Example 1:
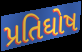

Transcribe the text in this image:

પ્રતિઘોષ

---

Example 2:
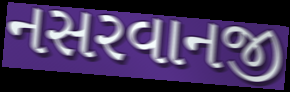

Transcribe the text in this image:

નસરવાનજી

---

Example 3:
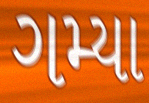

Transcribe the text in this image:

ગમ્યા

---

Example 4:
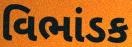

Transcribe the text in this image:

વિભાંડક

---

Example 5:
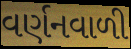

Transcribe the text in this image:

વર્ણનવાળી